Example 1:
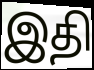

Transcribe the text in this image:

இதி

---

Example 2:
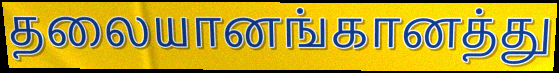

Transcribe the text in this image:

தலையானங்கானத்து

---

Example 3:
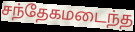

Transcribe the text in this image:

சந்தேகமடைந்த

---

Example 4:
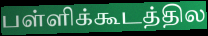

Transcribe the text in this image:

பள்ளிக்கூடத்தில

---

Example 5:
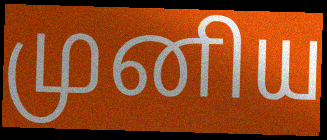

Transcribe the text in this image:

முனிய